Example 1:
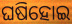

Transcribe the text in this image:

ଘଷିହୋଇ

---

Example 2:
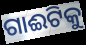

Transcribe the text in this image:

ଗାଈଟିକୁ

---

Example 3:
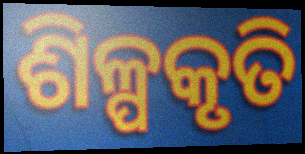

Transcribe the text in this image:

ଶିଳ୍ପକୃତି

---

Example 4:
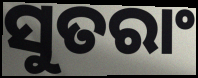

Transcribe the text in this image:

ସୁତରାଂ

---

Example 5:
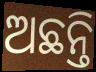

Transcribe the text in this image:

ଅଛନ୍ତି